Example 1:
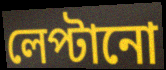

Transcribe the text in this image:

লেপ্টানো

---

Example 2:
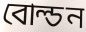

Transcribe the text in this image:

বোল্ডন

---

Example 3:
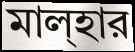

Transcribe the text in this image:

মাল্হার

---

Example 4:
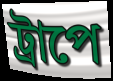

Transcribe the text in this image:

ট্রাপে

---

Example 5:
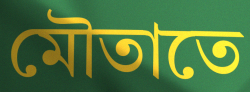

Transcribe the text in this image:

মৌতাতে